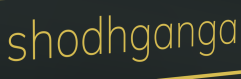
shodhganga